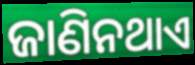
ଜାଣିନଥାଏ